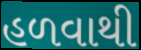
હળવાથી